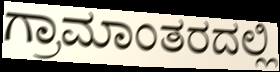
ಗ್ರಾಮಾಂತರದಲ್ಲಿ